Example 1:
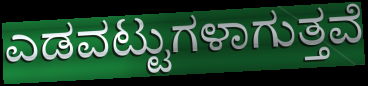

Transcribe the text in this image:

ಎಡವಟ್ಟುಗಳಾಗುತ್ತವೆ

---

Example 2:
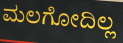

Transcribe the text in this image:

ಮಲಗೋದಿಲ್ಲ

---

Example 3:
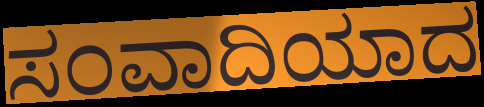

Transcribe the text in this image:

ಸಂವಾದಿಯಾದ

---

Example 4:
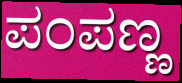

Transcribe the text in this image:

ಪಂಪಣ್ಣ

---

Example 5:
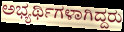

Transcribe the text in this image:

ಅಭ್ಯರ್ಥಿಗಳಾಗಿದ್ದರು